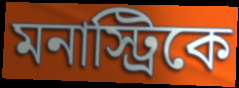
মনাস্ট্রিকে